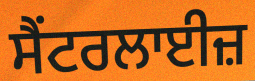
ਸੈਂਟਰਲਾਈਜ਼